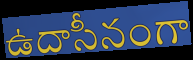
ఉదాసీనంగా